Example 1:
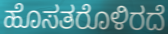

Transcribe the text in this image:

ಹೊಸತರೊಳಿರದೆ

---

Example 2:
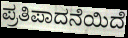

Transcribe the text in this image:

ಪ್ರತಿಪಾದನೆಯಿದೆ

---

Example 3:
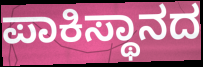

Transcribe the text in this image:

ಪಾಕಿಸ್ಥಾನದ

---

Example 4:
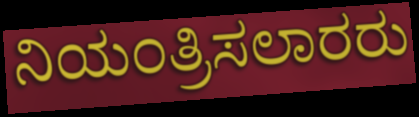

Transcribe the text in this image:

ನಿಯಂತ್ರಿಸಲಾರರು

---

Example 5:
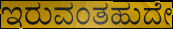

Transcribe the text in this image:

ಇರುವಂತಹುದೇ